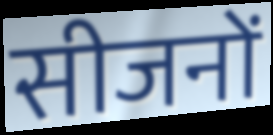
सीजनों